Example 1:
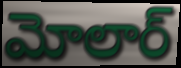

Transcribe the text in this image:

మోలార్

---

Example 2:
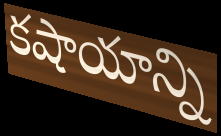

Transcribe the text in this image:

కషాయాన్ని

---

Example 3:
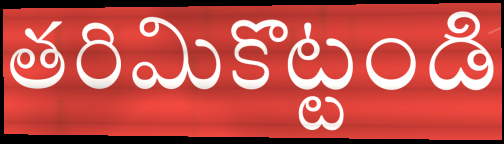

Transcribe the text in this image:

తరిమికొట్టండి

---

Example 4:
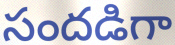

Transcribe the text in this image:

సందడిగా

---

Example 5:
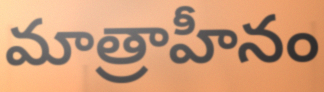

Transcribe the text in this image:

మాత్రాహీనం